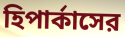
হিপার্কাসের